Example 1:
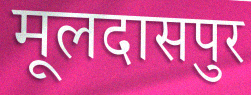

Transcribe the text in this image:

मूलदासपुर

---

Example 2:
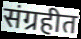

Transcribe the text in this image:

संग्रहीत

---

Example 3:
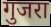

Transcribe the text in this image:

गुजरा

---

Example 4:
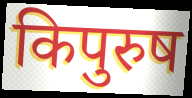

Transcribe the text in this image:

किपुरुष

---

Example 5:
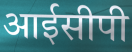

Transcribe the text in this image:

आईसीपी